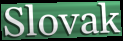
Slovak